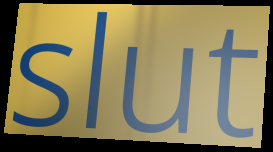
slut